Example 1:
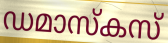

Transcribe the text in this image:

ഡമാസ്കസ്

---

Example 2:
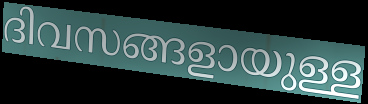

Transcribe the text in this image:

ദിവസങ്ങളായുള്ള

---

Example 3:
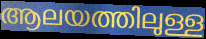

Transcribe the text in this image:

ആലയത്തിലുള്ള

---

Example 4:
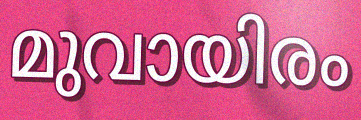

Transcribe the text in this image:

മുവായിരം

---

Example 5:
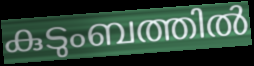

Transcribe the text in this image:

കുടുംബത്തിൽ